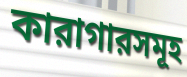
কারাগারসমূহ